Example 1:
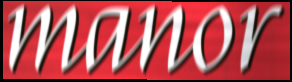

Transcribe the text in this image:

manor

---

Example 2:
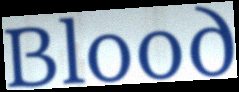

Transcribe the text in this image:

Blood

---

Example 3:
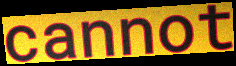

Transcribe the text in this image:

cannot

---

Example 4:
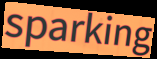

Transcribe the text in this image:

sparking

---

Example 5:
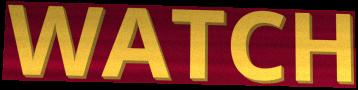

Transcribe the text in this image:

WATCH